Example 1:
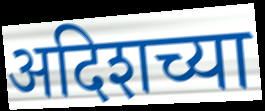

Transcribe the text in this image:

अदिशच्या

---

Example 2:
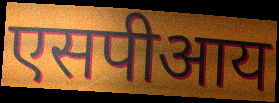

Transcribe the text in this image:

एसपीआय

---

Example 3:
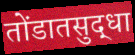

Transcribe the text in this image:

तोंडातसुद्धा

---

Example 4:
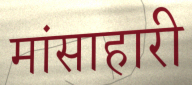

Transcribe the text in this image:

मांसाहारी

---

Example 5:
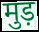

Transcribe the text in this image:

मुड़